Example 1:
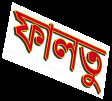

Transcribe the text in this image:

ফালতু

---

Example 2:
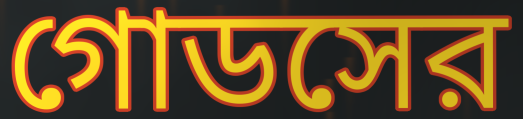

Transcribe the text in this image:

গোডসের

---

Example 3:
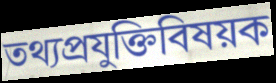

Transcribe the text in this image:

তথ্যপ্রযুক্তিবিষয়ক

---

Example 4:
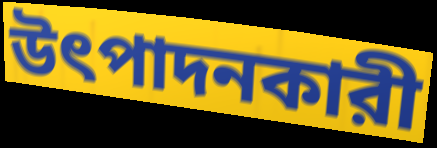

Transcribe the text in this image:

উৎপাদনকারী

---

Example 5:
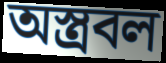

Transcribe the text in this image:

অস্ত্রবল